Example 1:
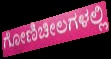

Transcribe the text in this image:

ಗೋಣಿಚೀಲಗಳಲ್ಲಿ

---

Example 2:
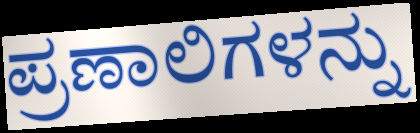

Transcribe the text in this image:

ಪ್ರಣಾಲಿಗಳನ್ನು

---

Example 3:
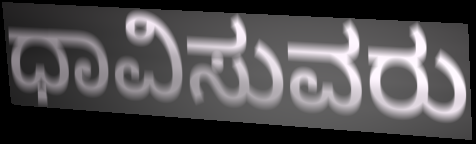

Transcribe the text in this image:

ಧಾವಿಸುವರು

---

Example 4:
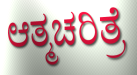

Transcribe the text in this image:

ಆತ್ಮಚರಿತ್ರೆ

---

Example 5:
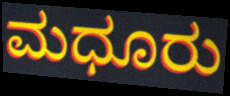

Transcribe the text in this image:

ಮಧೂರು